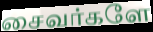
சைவர்களே